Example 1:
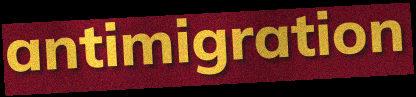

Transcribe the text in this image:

antimigration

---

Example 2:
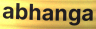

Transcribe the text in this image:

abhanga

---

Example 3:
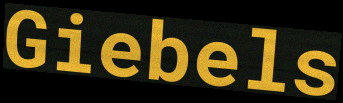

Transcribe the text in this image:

Giebels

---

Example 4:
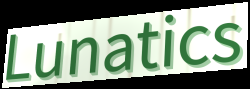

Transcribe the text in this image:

Lunatics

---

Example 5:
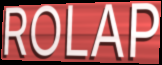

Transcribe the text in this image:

ROLAP